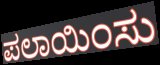
ಪಲಾಯಿಂಸು